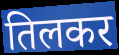
तिलकर